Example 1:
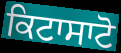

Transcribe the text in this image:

ਕਿਟਾਸਾਟੋ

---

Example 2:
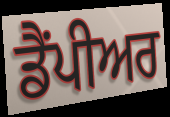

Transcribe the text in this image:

ਡੈਂਪੀਅਰ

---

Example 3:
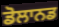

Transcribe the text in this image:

ਡੋਲਾਨਡ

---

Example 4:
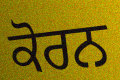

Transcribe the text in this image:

ਕੋਰਨ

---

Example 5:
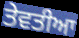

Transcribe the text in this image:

ਤੇਵਤੀਆ